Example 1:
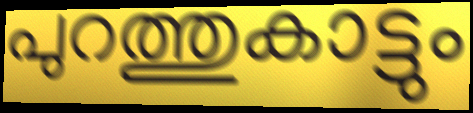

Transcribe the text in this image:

പുറത്തുകാട്ടും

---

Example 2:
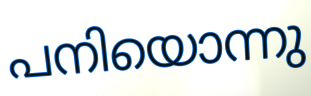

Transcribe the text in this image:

പനിയൊന്നു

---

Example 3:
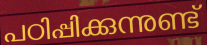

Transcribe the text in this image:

പഠിപ്പിക്കുന്നുണ്ട്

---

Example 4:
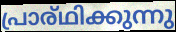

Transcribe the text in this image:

പ്രാര്ഥിക്കുന്നു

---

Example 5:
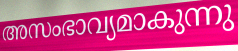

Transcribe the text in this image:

അസംഭാവ്യമാകുന്നു